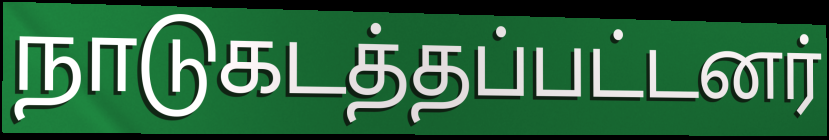
நாடுகடத்தப்பட்டனர்